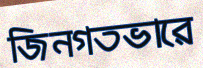
জিনগতভাৱে